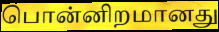
பொன்னிறமானது